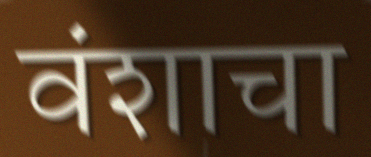
वंशाचा